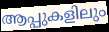
ആപ്പുകളിലും